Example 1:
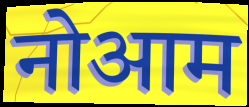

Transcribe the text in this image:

नोआम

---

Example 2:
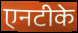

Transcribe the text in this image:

एनटीके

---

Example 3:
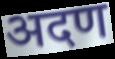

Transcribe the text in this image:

अदण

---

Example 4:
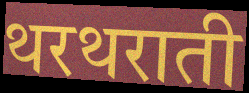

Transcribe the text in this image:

थरथराती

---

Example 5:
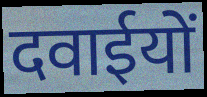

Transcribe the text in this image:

दवाईयों